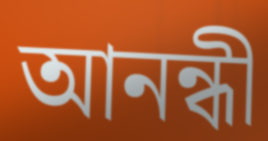
আনন্ধী